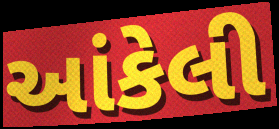
આંકેલી